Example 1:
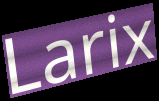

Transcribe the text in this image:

Larix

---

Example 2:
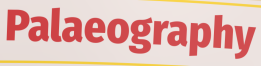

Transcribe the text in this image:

Palaeography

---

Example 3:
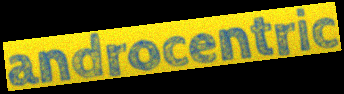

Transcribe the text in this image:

androcentric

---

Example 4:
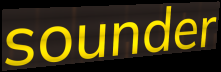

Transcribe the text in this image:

sounder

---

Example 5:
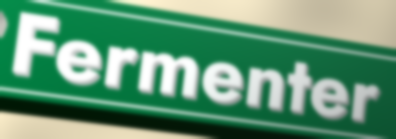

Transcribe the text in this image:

Fermenter